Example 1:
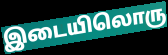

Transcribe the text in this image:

இடையிலொரு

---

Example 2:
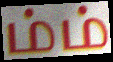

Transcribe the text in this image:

ம்ம்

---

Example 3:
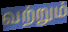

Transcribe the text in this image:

வற்றும்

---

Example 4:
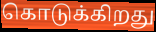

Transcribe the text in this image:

கொடுக்கிறது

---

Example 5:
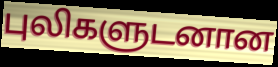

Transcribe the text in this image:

புலிகளுடனான